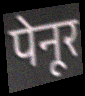
पेनूर